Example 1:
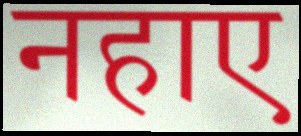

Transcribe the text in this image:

नहाए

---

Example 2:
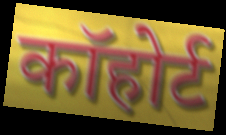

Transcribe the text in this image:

कॉहोर्ट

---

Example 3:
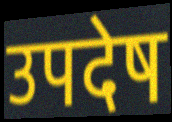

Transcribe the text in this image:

उपदेष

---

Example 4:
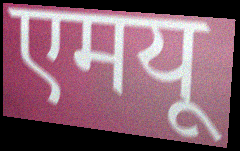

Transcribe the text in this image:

एमयू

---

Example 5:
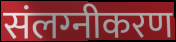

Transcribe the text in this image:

संलग्‍नीकरण